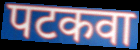
पटकवा